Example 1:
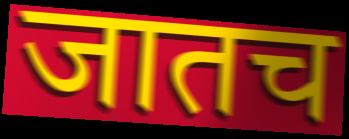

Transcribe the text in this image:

जातच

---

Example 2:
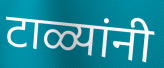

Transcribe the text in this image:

टाळ्यांनी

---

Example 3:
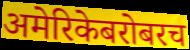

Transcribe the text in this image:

अमेरिकेबरोबरच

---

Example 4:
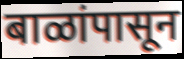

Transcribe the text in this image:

बाळांपासून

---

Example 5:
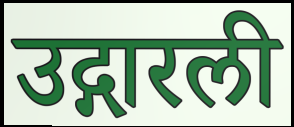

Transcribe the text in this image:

उद्गारली